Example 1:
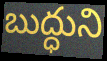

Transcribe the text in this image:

బుద్ధుని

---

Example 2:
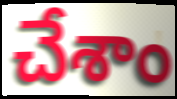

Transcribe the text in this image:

చేశాం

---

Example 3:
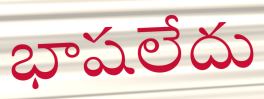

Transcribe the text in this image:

భాషలేదు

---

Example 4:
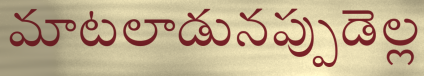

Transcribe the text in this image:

మాటలాడునప్పుడెల్ల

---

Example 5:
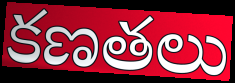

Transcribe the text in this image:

కణతలు